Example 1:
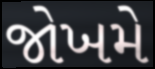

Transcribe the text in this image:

જોખમે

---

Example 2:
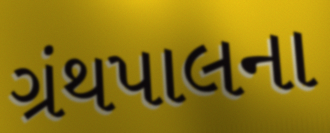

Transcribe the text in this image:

ગ્રંથપાલના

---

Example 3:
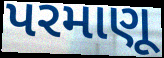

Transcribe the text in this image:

પરમાણૂ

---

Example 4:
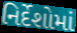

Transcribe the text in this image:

નિર્દેશોમાં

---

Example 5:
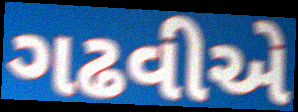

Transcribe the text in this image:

ગઢવીએ